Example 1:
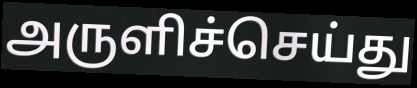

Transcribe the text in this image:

அருளிச்செய்து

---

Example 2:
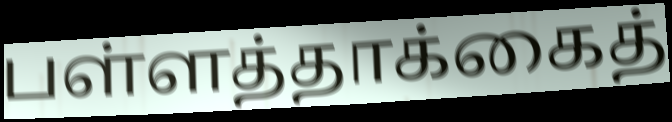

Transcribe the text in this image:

பள்ளத்தாக்கைத்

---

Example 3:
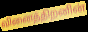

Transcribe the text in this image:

வினைத்திறனின்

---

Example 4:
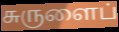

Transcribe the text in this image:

சுருளைப்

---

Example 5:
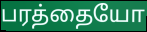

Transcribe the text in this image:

பரத்தையோ